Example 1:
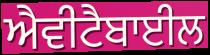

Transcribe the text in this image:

ਐਵੀਟੈਬਾਈਲ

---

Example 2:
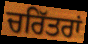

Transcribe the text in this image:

ਚਰਿੱਤਰਾਂ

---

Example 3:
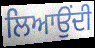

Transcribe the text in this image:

ਲਿਆਉਂਦੀ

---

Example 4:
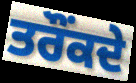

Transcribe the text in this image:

ਤਰੌਂਕਦੇ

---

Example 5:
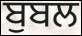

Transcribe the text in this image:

ਬੁਬਲ